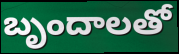
బృందాలతో